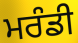
ਮਰੰਡੀ